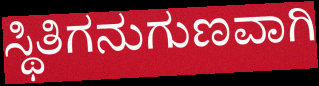
ಸ್ಥಿತಿಗನುಗುಣವಾಗಿ